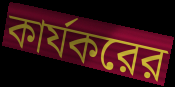
কার্যকরের